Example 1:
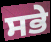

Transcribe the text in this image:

ਸਭੇ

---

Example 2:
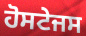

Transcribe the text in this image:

ਹੋਸਟੇਜਸ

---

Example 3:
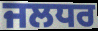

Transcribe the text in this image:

ਜਲਧਰ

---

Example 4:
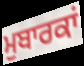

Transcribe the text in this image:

ਮੁਬਾਰਕਾਂ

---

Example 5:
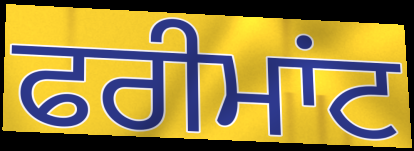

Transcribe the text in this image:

ਫਰੀਮਾਂਟ